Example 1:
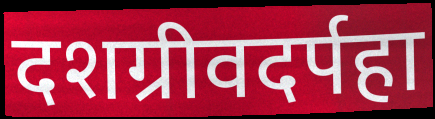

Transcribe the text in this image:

दशग्रीवदर्पहा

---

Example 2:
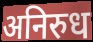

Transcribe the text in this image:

अनिरुध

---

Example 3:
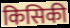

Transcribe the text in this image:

किसिकी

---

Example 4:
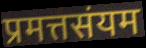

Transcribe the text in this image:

प्रमत्तसंयम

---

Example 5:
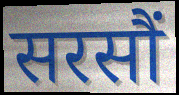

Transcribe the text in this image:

सरसौं